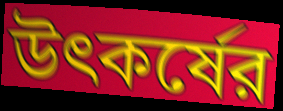
উৎকর্ষের